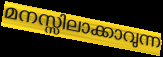
മനസ്സിലാക്കാവുന്ന